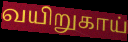
வயிறுகாய்